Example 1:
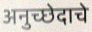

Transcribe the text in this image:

अनुच्छेदाचे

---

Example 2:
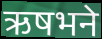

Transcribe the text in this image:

ऋषभने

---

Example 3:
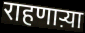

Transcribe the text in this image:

राहणाऱ्‍या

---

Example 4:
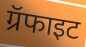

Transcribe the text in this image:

ग्रॅफाइट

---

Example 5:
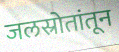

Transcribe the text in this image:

जलस्रोतांतून